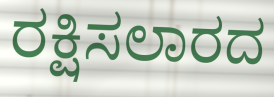
ರಕ್ಷಿಸಲಾರದ